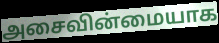
அசைவின்மையாக